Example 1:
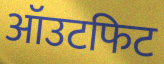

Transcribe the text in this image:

ऑउटफिट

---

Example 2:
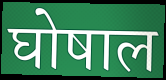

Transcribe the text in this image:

घोषाल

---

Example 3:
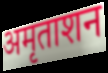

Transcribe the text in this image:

अमृताशन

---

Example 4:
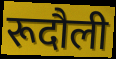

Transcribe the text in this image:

रूदौली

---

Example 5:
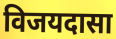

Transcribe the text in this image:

विजयदासा